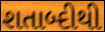
શતાબ્દીથી